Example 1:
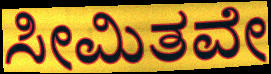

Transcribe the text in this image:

ಸೀಮಿತವೇ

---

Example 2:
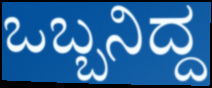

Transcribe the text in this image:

ಒಬ್ಬನಿದ್ದ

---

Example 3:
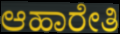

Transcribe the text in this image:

ಆಹಾರೇತಿ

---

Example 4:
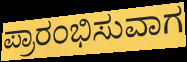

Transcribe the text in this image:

ಪ್ರಾರಂಭಿಸುವಾಗ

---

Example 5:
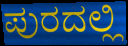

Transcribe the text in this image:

ಪುರದಲ್ಲಿ